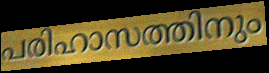
പരിഹാസത്തിനും